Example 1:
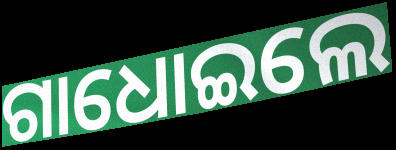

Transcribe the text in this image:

ଗାଧୋଇଲେ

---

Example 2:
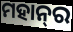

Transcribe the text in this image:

ମହାନ୍‌ର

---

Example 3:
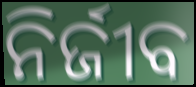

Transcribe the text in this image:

ନିର୍ଜୀବ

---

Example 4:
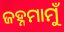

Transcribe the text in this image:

ଜହ୍ନମାମୁଁ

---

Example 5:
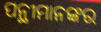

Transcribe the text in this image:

ପନ୍ଥୀମାନଙ୍କର